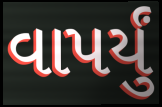
વાપર્યું